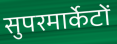
सुपरमार्केटों